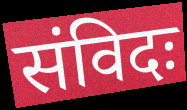
संविदः